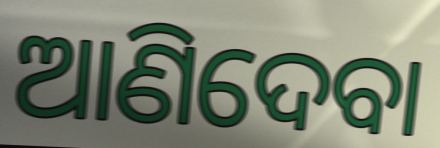
ଆଣିଦେବା